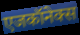
एजकॉनेक्स